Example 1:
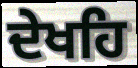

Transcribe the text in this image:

ਦੇਖਹਿ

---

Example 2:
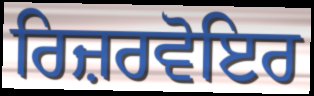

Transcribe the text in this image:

ਰਿਜ਼ਰਵੋਇਰ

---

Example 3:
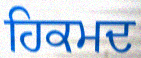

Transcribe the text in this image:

ਹਿਕਮਦ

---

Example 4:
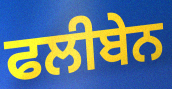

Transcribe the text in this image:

ਫਲੀਬੇਨ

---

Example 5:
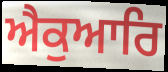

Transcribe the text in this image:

ਐਕੁਆਰਿ